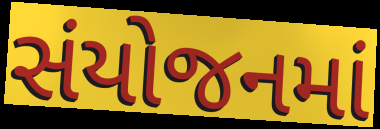
સંયોજનમાં